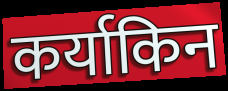
कर्याकिन